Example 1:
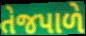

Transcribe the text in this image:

તેજપાળે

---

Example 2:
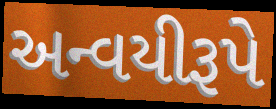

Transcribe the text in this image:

અન્વયીરૂપે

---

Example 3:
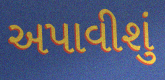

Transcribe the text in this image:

અપાવીશું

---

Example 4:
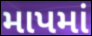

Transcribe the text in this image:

માપમાં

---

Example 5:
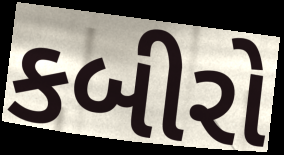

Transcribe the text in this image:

કબીરો